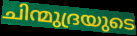
ചിന്മുദ്രയുടെ